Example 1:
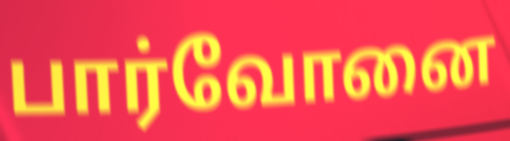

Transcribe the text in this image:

பார்வோனை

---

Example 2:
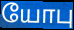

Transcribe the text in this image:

யோபு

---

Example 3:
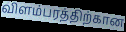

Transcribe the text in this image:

விளம்பரத்திற்கான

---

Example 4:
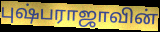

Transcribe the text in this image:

புஷ்பராஜாவின்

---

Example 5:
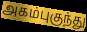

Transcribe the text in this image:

அகம்புகுந்து